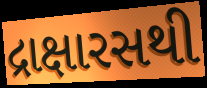
દ્રાક્ષારસથી